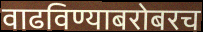
वाढविण्याबरोबरच